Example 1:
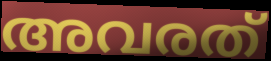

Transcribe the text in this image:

അവരത്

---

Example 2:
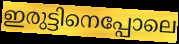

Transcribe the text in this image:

ഇരുട്ടിനെപ്പോലെ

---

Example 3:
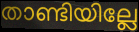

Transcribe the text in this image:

താണ്ടിയില്ലേ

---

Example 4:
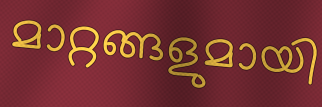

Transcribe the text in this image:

മാറ്റങ്ങളുമായി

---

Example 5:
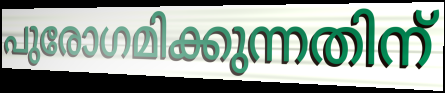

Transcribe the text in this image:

പുരോഗമിക്കുന്നതിന്